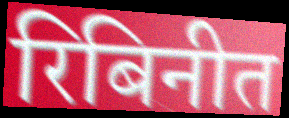
रिबिनीत